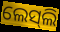
ଲେସ୍‍ଲି